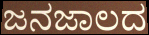
ಜನಜಾಲದ